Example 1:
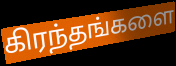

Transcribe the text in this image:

கிரந்தங்களை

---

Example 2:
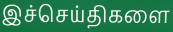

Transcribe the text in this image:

இச்செய்திகளை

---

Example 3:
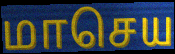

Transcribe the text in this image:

மாசெய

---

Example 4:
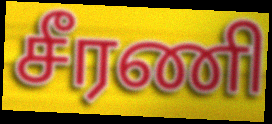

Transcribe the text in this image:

சீரணி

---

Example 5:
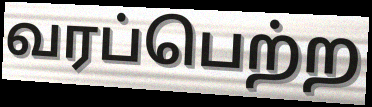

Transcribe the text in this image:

வரப்பெற்ற